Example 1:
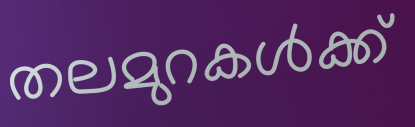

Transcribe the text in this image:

തലമുറകൾക്ക്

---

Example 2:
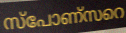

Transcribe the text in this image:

സ്പോണ്സറെ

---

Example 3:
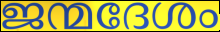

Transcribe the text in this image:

ജന്മദേശം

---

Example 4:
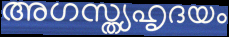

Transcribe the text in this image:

അഗസ്ത്യഹൃദയം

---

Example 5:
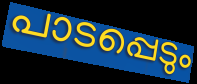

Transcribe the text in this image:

പാടപ്പെടും